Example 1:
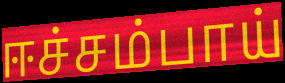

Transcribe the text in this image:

ஈச்சம்பாய்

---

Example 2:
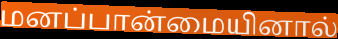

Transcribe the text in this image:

மனப்பான்மையினால்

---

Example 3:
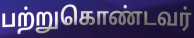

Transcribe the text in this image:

பற்றுகொண்டவர்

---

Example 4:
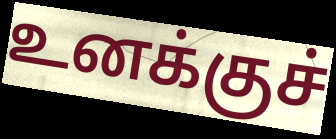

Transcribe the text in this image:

உனக்குச்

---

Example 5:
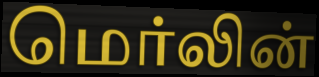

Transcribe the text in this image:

மெர்லின்